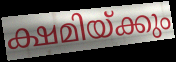
ക്ഷമിയ്ക്കും